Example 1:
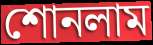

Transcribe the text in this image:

শোনলাম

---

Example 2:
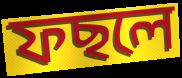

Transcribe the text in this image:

ফছলে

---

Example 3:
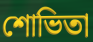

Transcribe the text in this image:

শোভিতা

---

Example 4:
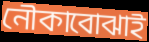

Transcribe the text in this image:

নৌকাবোঝাই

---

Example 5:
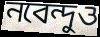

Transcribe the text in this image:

নবেন্দুও